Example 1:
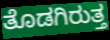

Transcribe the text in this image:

ತೊಡಗಿರುತ್ತ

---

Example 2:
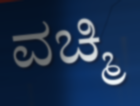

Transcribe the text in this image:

ವಚ್ಮಿ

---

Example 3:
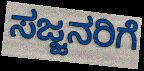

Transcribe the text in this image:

ಸಜ್ಜನರಿಗೆ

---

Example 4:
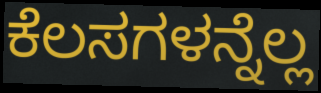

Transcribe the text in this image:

ಕೆಲಸಗಳನ್ನೆಲ್ಲ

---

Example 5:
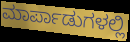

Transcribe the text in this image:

ಮಾರ್ಪಾಡುಗಳಲ್ಲಿ